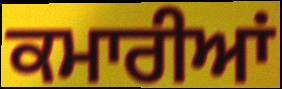
ਕਮਾਰੀਆਂ